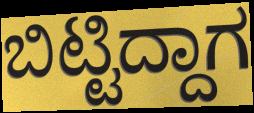
ಬಿಟ್ಟಿದ್ದಾಗ